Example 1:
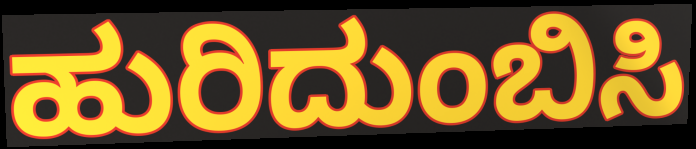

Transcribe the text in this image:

ಹುರಿದುಂಬಿಸಿ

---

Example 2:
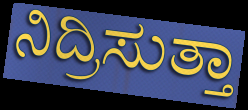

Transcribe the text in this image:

ನಿದ್ರಿಸುತ್ತಾ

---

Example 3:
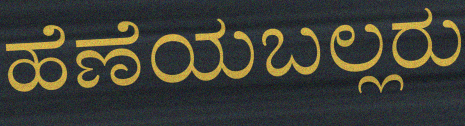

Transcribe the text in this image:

ಹೆಣೆಯಬಲ್ಲರು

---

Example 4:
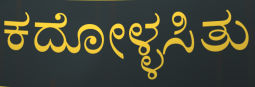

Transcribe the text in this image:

ಕದೋಳ್ಳಸಿತು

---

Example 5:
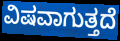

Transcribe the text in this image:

ವಿಷವಾಗುತ್ತದೆ